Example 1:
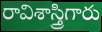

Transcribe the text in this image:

రావిశాస్త్రిగారు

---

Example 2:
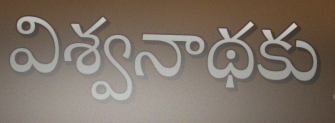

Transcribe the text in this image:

విశ్వనాథకు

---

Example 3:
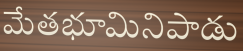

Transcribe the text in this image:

మేతభూమినిపాడు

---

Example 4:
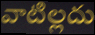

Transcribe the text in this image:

వాటిల్లదు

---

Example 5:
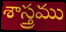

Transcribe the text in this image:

శాస్త్రము